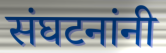
संघटनांनी